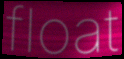
float